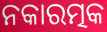
ନକାରତ୍ମକ